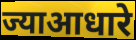
ज्याआधारे